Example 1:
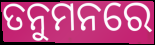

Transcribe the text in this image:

ତନୁମନରେ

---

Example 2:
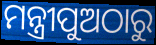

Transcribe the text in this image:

ମନ୍ତ୍ରୀପୁଅଠାରୁ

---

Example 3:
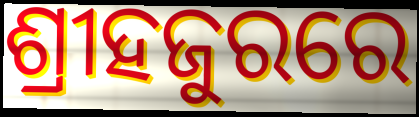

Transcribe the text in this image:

ଶ୍ରୀହଜୁରରେ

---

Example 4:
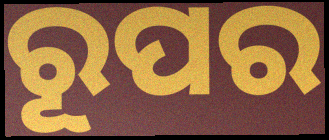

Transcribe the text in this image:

ରୂପର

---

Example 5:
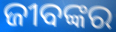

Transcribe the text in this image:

ଜୀବଙ୍କର